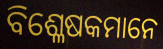
ବିଶ୍ଳେଷକମାନେ